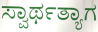
ಸ್ವಾರ್ಥತ್ಯಾಗ